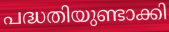
പദ്ധതിയുണ്ടാക്കി